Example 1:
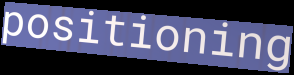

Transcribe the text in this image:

positioning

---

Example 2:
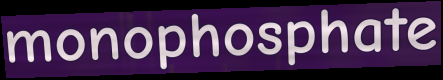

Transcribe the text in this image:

monophosphate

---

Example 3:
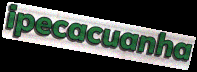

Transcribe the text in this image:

ipecacuanha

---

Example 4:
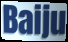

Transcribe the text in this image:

Baiju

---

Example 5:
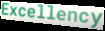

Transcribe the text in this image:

Excellency